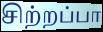
சிற்றப்பா